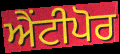
ਐਂਟੀਪੋਰ